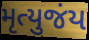
મૃત્યુજંય